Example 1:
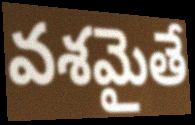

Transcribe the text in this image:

వశమైతే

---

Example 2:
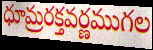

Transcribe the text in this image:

ధూమ్రరక్తవర్ణముగల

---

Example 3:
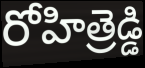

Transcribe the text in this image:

రోహిత్రెడ్డి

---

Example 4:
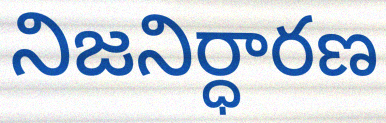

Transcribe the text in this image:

నిజనిర్ధారణ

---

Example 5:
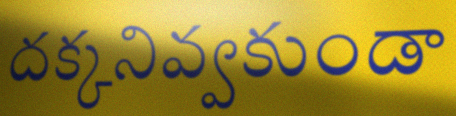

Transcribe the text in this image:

దక్కనివ్వకుండా